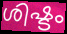
ശിഷ്ടം